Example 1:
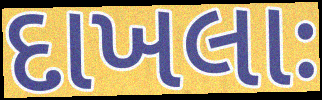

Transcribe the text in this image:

દાખલાઃ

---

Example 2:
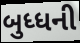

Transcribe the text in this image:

બુધ્ધની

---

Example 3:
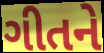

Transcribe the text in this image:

ગીતને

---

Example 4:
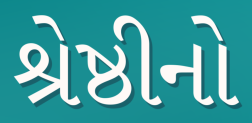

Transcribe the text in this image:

શ્રેષ્ઠીનો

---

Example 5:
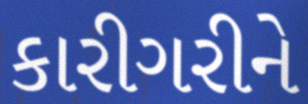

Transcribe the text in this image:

કારીગરીને